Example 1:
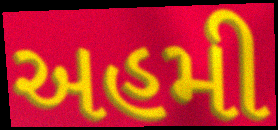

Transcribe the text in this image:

અહમી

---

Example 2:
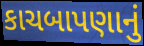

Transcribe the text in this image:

કાચબાપણાનું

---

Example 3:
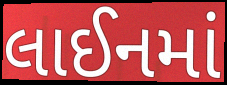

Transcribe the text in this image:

લાઈનમાં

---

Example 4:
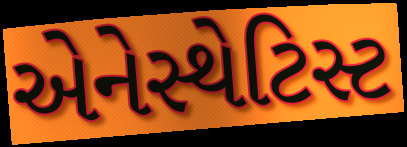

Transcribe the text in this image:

એનેસ્થેટિસ્ટ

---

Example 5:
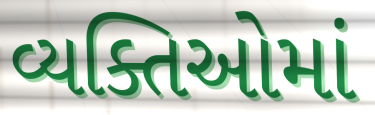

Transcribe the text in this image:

વ્યક્તિઓમાં